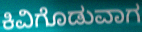
ಕಿವಿಗೊಡುವಾಗ